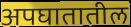
अपघातातील